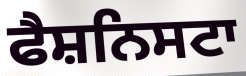
ਫੈਸ਼ਨਿਸਟਾ